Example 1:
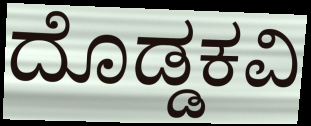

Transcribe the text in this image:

ದೊಡ್ಡಕವಿ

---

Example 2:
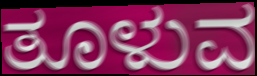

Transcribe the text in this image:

ತೂಳುವ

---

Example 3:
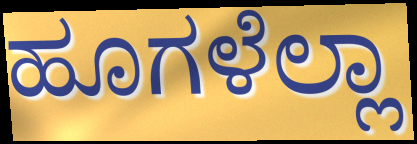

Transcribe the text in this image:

ಹೂಗಳೆಲ್ಲಾ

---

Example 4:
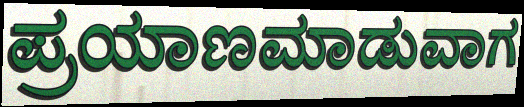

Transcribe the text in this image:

ಪ್ರಯಾಣಮಾಡುವಾಗ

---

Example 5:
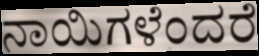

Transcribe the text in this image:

ನಾಯಿಗಳೆಂದರೆ